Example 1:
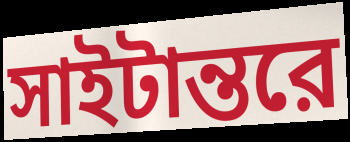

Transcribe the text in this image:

সাইটান্তরে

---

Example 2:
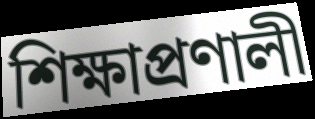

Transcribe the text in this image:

শিক্ষাপ্রণালী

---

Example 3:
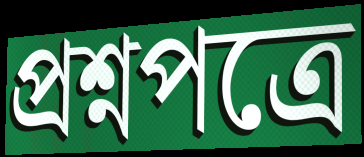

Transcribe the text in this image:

প্রশ্নপত্রে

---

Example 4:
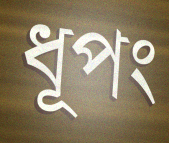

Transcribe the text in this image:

ধূপং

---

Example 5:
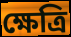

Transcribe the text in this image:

ক্ষেত্রি